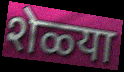
शेळ्या